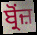
ਬ੍ਰੋਂਜ਼